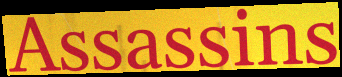
Assassins